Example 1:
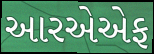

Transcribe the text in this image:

આરએએફ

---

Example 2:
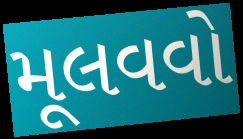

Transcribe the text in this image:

મૂલવવો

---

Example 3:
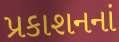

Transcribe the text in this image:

પ્રકાશનનાં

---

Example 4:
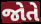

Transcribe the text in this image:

જોતે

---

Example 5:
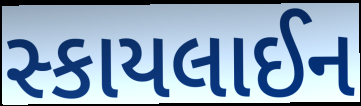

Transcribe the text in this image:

સ્કાયલાઈન